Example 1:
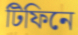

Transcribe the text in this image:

টিফিনে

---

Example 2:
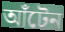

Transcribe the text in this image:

আঁটেন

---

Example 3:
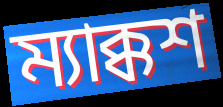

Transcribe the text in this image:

ম্যাক্কশ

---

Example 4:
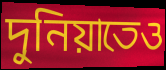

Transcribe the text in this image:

দুনিয়াতেও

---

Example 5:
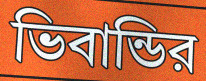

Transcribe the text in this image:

ভিবান্ডির